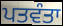
ਪਤਵੰਤਾ